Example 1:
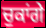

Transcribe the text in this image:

ਚੁਕਾਂਗੇ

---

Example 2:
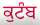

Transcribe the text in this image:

ਕੁਟੰਬ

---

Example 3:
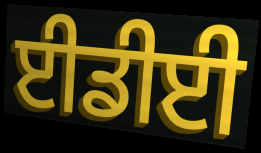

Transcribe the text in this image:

ਈਡੀਈ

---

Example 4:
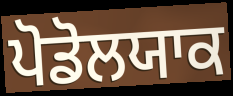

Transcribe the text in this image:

ਪੋਡੋਲਯਾਕ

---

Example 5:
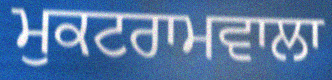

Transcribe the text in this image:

ਮੁਕਟਰਾਮਵਾਲਾ